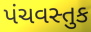
પંચવસ્તુક